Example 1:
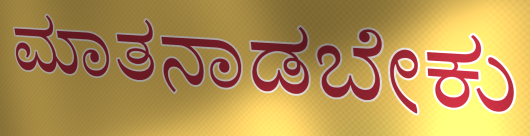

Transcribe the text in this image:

ಮಾತನಾಡಬೇಕು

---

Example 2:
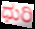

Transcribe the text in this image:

ಧುರಿ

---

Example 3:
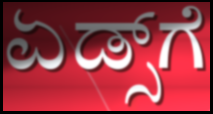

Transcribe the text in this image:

ಏಡ್ಸ್‌ಗೆ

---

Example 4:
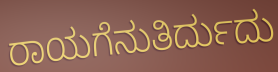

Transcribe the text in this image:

ರಾಯಗೆನುತಿರ್ದುದು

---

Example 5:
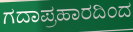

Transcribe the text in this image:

ಗದಾಪ್ರಹಾರದಿಂದ